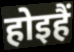
होइहैं